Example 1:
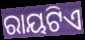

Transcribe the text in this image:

ରାୟଟିଏ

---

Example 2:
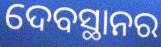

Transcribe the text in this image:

ଦେବସ୍ଥାନର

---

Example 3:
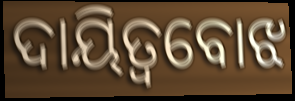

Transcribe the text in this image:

ଦାୟିତ୍ୱବୋଝ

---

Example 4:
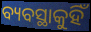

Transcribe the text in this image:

ବ୍ୟବସ୍ଥାକୁହିଁ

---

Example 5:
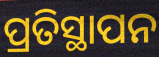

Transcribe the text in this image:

ପ୍ରତିସ୍ଥାପନ